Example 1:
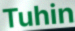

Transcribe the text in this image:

Tuhin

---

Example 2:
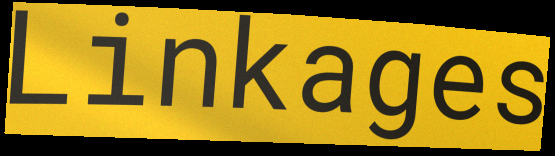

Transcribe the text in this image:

Linkages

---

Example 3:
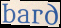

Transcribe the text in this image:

bard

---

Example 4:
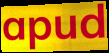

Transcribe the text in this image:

apud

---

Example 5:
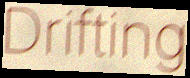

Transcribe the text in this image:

Drifting